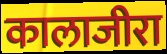
कालाजीरा